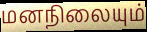
மனநிலையும்